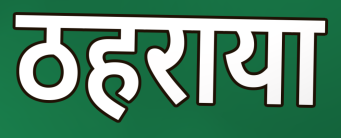
ठहराया